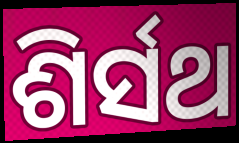
ଶିର୍ସଥ